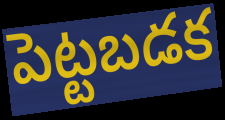
పెట్టబడక